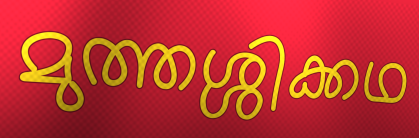
മുത്തശ്ശിക്കഥ